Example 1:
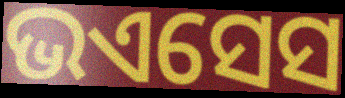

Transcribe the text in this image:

ଭଏସେସ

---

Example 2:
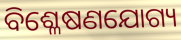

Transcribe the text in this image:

ବିଶ୍ଳେଷଣଯୋଗ୍ୟ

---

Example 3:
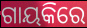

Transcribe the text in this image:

ଗାୟକିରେ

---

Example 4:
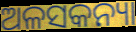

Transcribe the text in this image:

ଅଳସକନ୍ୟା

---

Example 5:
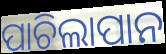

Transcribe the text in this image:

ପାଚିଲାପାନ